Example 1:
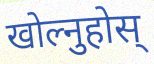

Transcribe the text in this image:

खोल्नुहोस्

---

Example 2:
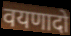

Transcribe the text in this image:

वयणादो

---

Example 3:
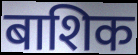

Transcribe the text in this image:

बाशिक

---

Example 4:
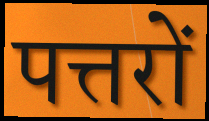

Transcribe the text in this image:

पत्तरों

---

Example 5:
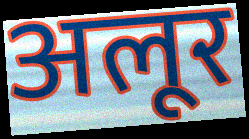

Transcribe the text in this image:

अलूर